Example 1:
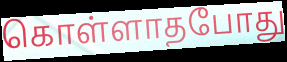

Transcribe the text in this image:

கொள்ளாதபோது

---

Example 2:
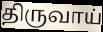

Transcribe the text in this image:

திருவாய்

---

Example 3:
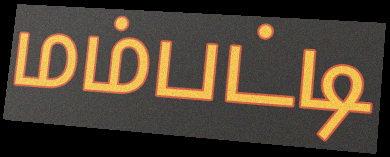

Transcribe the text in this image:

மம்பட்டி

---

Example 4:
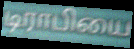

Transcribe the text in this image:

டிராபியை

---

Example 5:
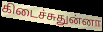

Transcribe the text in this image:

கிடைச்சுதுன்னா